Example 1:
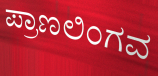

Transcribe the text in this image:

ಪ್ರಾಣಲಿಂಗವ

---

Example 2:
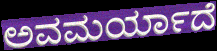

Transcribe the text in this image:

ಅವಮರ್ಯಾದೆ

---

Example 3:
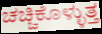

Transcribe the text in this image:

ಚಚ್ಚಿಕೊಳ್ಳುತ್ತ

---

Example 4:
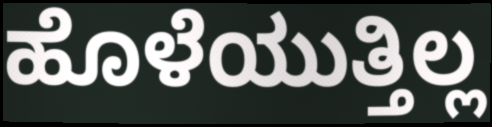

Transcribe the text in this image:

ಹೊಳೆಯುತ್ತಿಲ್ಲ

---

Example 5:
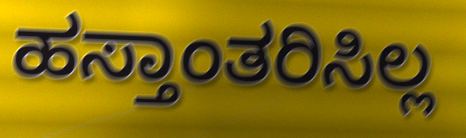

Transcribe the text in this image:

ಹಸ್ತಾಂತರಿಸಿಲ್ಲ